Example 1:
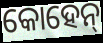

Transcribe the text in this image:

କୋହେନ୍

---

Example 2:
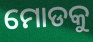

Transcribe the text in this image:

ମୋଡକୁ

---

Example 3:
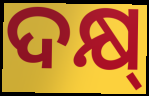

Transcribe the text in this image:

ଦକ୍ଷ୍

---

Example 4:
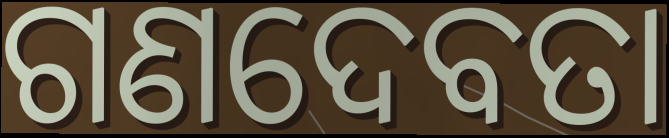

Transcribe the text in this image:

ଗଣଦେବତା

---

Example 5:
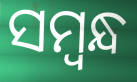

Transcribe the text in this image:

ସମ୍ବନ୍ଧ